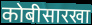
कोबीसारखा